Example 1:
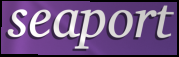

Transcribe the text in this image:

seaport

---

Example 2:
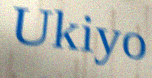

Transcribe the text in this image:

Ukiyo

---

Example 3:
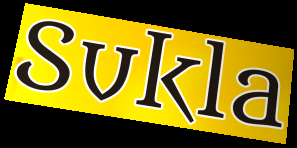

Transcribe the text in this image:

Sukla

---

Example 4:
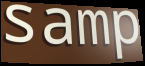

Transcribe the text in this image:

samp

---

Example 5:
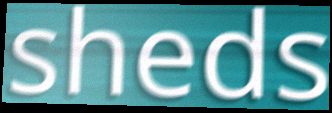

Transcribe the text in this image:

sheds